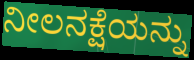
ನೀಲನಕ್ಷೆಯನ್ನು